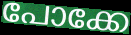
പോക്കേ